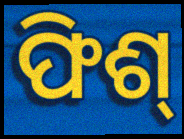
ଫିଶ୍